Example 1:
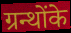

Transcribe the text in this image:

ग्रन्थोंके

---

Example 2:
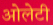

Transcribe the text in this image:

ओलेटी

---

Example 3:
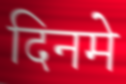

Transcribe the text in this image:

दिनमे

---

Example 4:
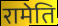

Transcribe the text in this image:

रामेति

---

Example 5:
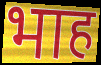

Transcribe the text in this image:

भाह